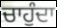
ਚਾਹੁੰਦਾ